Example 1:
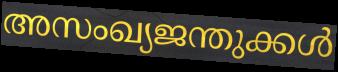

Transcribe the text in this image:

അസംഖ്യജന്തുക്കൾ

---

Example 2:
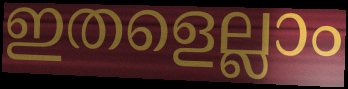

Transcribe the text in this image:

ഇതളെല്ലാം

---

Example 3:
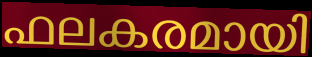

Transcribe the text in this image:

ഫലകരമായി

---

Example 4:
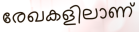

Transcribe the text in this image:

രേഖകളിലാണ്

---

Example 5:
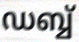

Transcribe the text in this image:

ഡബ്ബ്